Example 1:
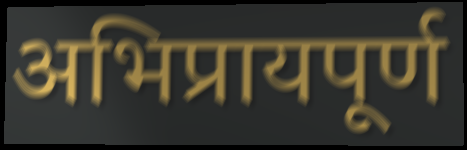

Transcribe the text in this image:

अभिप्रायपूर्ण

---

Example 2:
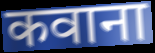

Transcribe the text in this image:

कवाना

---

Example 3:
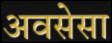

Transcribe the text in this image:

अवसेसा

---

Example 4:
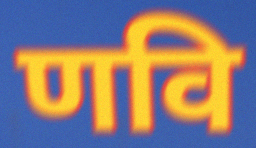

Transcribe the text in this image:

णवि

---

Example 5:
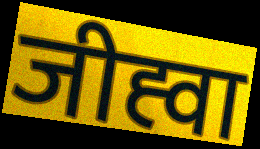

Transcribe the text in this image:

जीह्वा